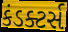
કંડક્ટર્સ